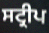
ਸਟ੍ਰੀਪ